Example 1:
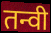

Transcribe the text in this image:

तन्वी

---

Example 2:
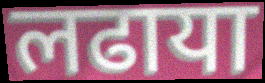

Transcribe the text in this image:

लढाया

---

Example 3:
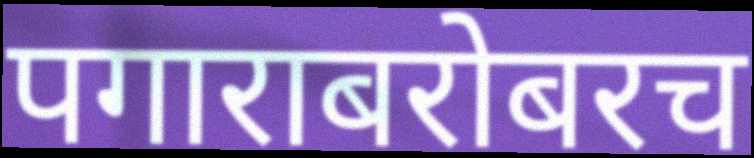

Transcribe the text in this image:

पगाराबरोबरच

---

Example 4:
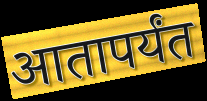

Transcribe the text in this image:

आतापर्यंत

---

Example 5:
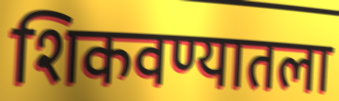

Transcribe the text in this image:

शिकवण्यातला